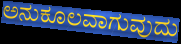
ಅನುಕೂಲವಾಗುವುದು